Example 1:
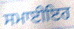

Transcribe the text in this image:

ਸਮਾਈਇਹ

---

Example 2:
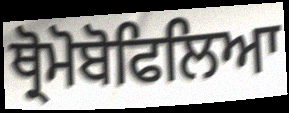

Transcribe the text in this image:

ਥ੍ਰੋਮੋਬੋਫਿਲਿਆ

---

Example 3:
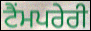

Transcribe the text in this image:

ਟੈਂਮਪਰੇਰੀ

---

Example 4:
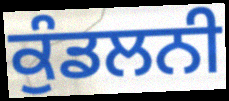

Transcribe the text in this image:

ਕੁੰਡਲਨੀ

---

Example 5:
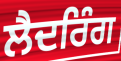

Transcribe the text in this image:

ਲੈਦਰਿੰਗ